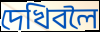
দেখিবলৈ